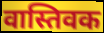
वास्तिवक